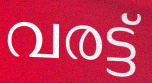
വരട്ട്